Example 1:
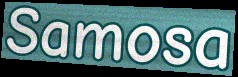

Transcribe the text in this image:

Samosa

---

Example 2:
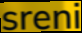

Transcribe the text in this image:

sreni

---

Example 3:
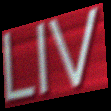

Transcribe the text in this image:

LIV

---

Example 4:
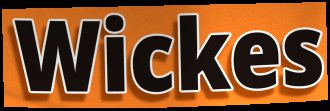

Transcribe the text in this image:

Wickes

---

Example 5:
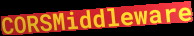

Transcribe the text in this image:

CORSMiddleware